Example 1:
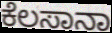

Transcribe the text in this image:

ಕೆಲಸಾನಾ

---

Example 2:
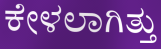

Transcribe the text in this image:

ಕೇಳಲಾಗಿತ್ತು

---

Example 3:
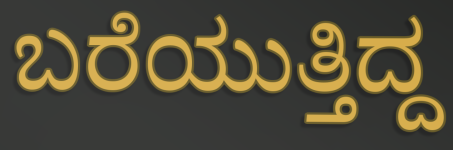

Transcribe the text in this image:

ಬರೆಯುತ್ತಿದ್ದ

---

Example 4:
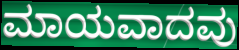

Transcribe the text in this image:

ಮಾಯವಾದವು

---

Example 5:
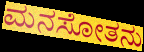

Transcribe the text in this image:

ಮನಸೋತನು